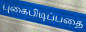
புகைபிடிப்பதை